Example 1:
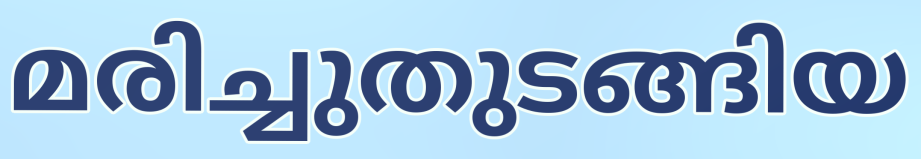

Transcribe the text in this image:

മരിച്ചുതുടങ്ങിയ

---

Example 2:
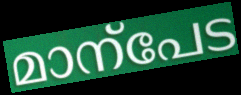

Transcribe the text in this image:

മാന്പേട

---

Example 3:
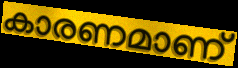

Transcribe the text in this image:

കാരണമാണ്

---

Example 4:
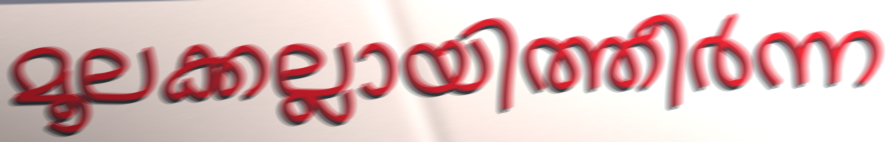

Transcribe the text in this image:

മൂലക്കല്ലായിത്തീർന്ന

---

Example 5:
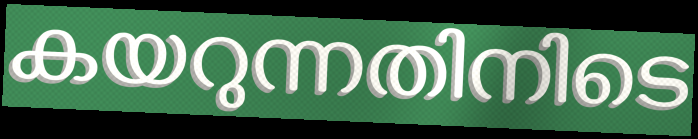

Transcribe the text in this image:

കയറുന്നതിനിടെ